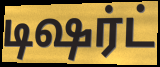
டிஷர்ட்